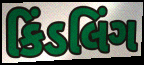
કિંડલિંગ